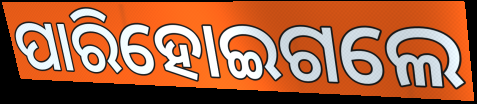
ପାରିହୋଇଗଲେ